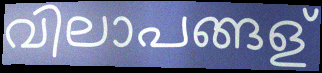
വിലാപങ്ങള്